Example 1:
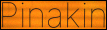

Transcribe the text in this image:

Pinakin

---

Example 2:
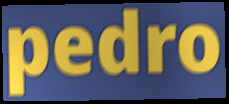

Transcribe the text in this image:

pedro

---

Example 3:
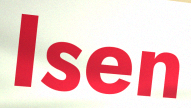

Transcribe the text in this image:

Isen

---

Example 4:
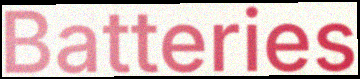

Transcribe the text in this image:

Batteries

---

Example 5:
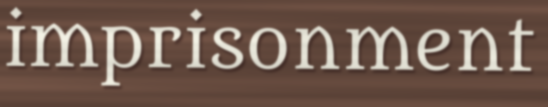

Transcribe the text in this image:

imprisonment